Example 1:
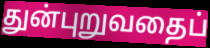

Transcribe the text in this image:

துன்புறுவதைப்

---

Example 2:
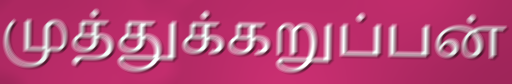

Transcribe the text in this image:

முத்துக்கறுப்பன்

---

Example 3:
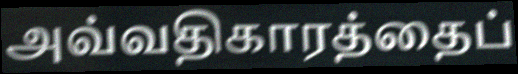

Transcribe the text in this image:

அவ்வதிகாரத்தைப்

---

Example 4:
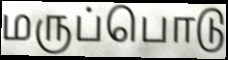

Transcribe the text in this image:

மருப்பொடு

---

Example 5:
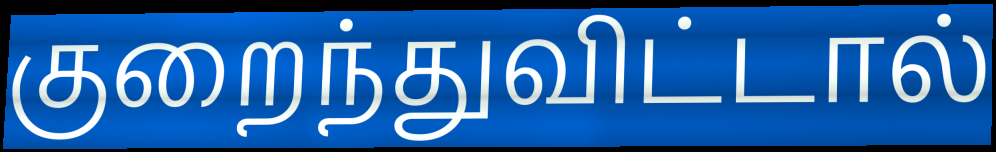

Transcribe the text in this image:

குறைந்துவிட்டால்